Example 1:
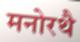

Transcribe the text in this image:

मनोरथै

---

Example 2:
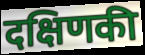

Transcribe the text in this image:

दक्षिणकी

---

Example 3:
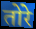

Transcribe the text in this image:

तोरे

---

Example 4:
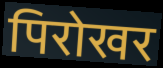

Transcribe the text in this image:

पिरोखर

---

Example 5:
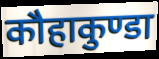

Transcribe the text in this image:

कौहाकुण्डा